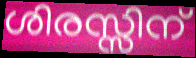
ശിരസ്സിന്